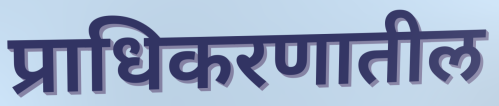
प्राधिकरणातील